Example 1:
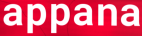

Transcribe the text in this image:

appana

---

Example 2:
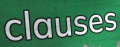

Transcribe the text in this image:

clauses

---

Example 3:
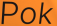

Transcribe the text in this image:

Pok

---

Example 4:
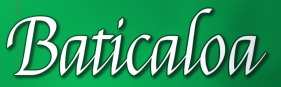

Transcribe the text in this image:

Baticaloa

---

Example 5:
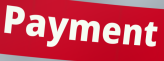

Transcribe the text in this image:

Payment